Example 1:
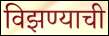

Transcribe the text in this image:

विझण्याची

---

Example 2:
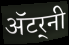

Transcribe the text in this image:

ॲटर्नी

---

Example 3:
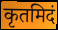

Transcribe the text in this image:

कृतमिदं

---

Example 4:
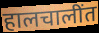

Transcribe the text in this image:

हालचालींत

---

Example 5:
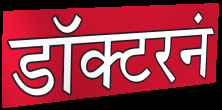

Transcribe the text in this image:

डॉक्टरनं